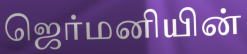
ஜெர்மனியின்